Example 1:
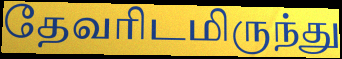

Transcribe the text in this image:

தேவரிடமிருந்து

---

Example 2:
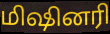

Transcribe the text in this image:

மிஷினரி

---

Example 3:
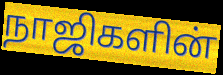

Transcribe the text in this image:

நாஜிகளின்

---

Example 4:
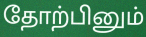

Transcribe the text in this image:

தோற்பினும்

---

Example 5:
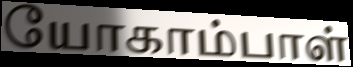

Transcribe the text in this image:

யோகாம்பாள்